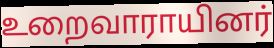
உறைவாராயினர்